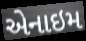
એનાઇમ